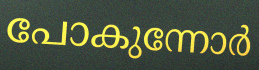
പോകുന്നോർ